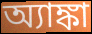
অ্যাঙ্কা